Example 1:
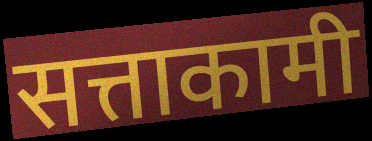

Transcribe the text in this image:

सत्ताकामी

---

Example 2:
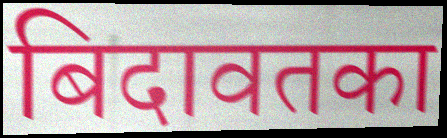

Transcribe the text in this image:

बिदावतका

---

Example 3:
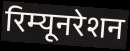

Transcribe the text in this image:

रिम्यूनरेशन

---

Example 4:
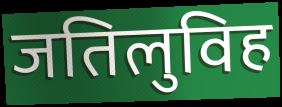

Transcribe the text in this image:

जतिलुविह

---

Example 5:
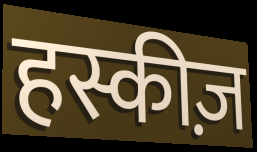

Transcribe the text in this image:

हस्कीज़